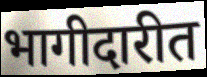
भागीदारीत